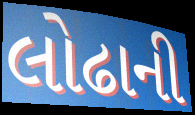
લોઢાની